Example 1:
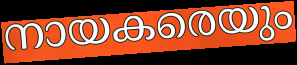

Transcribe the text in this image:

നായകരെയും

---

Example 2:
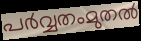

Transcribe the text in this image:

പർവ്വതംമുതൽ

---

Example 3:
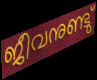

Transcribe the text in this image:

ജീവനുണ്ടു്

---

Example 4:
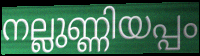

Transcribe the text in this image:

നല്ലുണ്ണിയപ്പം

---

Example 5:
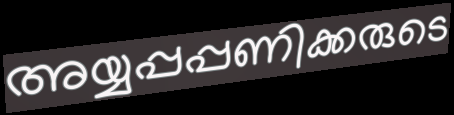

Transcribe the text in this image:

അയ്യപ്പപ്പണിക്കരുടെ